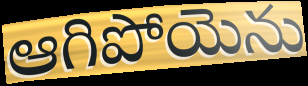
ఆగిపోయెను